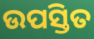
ଉପସ୍ତିତ